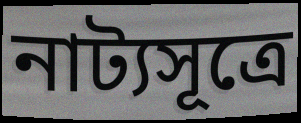
নাট্যসূত্রে